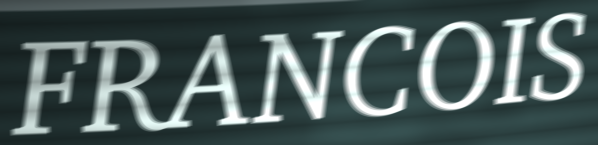
FRANCOIS